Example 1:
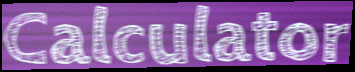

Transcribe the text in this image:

Calculator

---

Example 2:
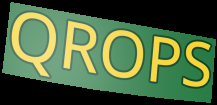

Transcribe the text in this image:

QROPS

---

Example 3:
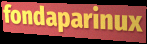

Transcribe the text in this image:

fondaparinux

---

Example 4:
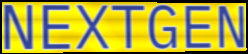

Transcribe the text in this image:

NEXTGEN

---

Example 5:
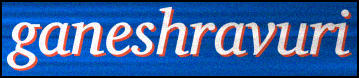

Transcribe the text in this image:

ganeshravuri